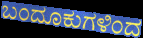
ಬಂದೂಕುಗಳಿಂದ